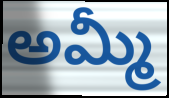
అమ్మీ